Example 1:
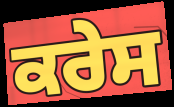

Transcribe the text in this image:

ਕਰੇਸ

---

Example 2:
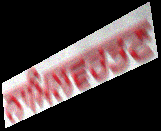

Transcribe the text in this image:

ਨਾਮਿਲਵਰਤਣ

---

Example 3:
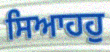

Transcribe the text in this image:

ਸਿਆਹਹੁ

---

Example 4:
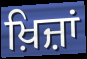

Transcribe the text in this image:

ਖ਼ਿਜ਼ਾਂ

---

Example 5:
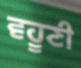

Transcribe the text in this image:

ਵਹੂਣੀ